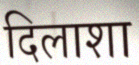
दिलाशा